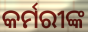
କର୍ମରୀଙ୍କ